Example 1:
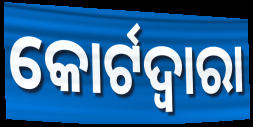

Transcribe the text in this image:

କୋର୍ଟଦ୍ୱାରା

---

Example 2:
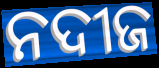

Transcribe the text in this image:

ନଦୀଜ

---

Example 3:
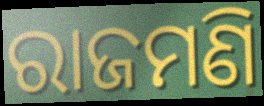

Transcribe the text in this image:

ରାଜମଣି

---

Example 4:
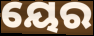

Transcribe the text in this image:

ୟେର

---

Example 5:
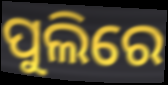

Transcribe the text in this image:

ପୁଲିରେ